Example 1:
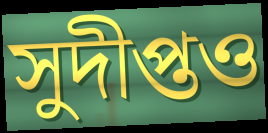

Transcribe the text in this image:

সুদীপ্তও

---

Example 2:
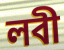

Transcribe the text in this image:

লবী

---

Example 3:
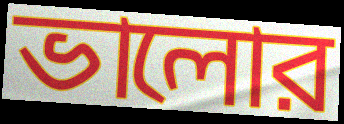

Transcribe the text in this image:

ভালোর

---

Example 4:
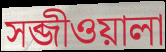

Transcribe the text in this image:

সব্জীওয়ালা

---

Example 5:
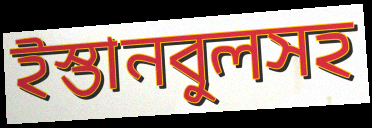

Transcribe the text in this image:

ইস্তানবুলসহ